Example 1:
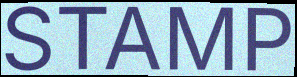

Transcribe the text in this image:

STAMP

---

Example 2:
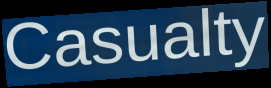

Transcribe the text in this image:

Casualty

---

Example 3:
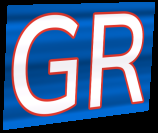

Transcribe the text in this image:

GR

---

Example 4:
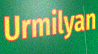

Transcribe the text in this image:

Urmilyan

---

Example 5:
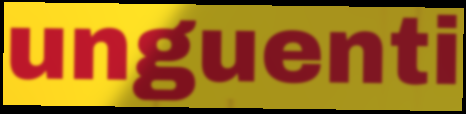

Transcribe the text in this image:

unguenti